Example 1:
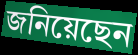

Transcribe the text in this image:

জনিয়েছেন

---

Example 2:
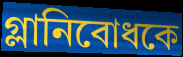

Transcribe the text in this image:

গ্লানিবোধকে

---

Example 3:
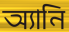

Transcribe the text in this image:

অ্যানি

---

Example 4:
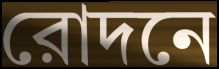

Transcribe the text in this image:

রোদনে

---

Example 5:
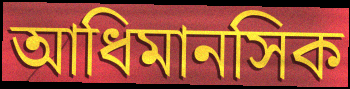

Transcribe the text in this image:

আধিমানসিক